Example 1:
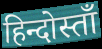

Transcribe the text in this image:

हिन्दोस्ताँ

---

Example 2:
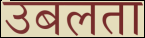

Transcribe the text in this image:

उबलता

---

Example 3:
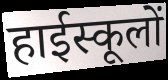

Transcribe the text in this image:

हाईस्कूलों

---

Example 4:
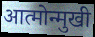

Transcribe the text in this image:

आत्मोन्मुखी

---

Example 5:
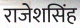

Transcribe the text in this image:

राजेशसिंह